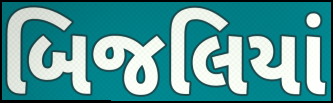
બિજલિયાં